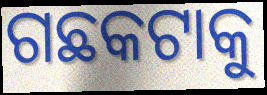
ଗଛକଟାକୁ